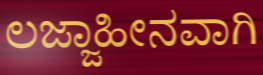
ಲಜ್ಜಾಹೀನವಾಗಿ